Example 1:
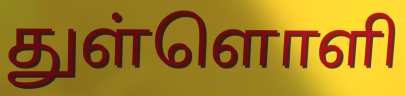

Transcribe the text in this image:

துள்ளொளி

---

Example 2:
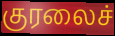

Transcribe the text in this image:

குரலைச்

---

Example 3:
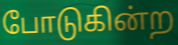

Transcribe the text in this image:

போடுகின்ற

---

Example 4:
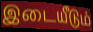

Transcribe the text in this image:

இடையீடும்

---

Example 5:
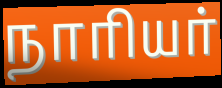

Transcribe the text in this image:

நாரியர்